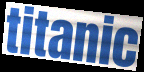
titanic